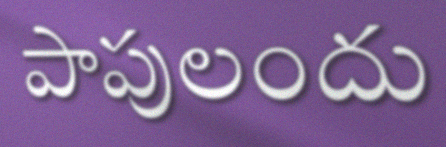
పాపులందు